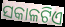
ସକାଳଟିଏ